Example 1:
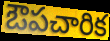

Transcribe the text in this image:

ఔపచారిక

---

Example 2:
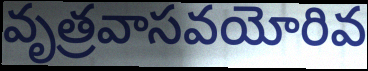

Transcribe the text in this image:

వృత్రవాసవయోరివ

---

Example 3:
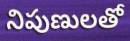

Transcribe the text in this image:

నిపుణులతో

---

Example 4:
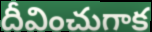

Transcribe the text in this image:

దీవించుగాక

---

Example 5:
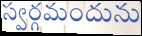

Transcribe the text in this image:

స్వర్గమందును